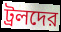
ট্রলদের